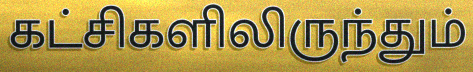
கட்சிகளிலிருந்தும்